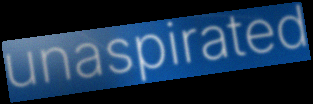
unaspirated